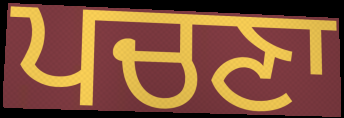
ਪਚਣਾ